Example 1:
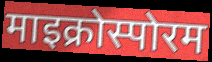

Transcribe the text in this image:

माइक्रोस्पोरम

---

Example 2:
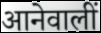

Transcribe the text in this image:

आनेवालीं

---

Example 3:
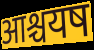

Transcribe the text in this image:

आश्चयष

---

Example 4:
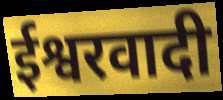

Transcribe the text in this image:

ईश्वरवादी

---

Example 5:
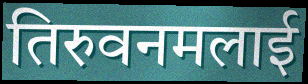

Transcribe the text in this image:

तिरुवनमलाई